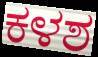
ಕಳಶ